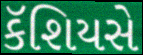
કૅશિયસે